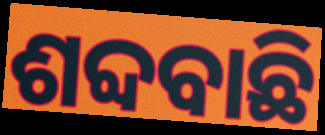
ଶବ୍ଦବାଛି